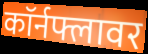
कॉर्नफ्लावर